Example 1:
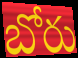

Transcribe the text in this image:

బోరు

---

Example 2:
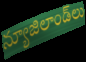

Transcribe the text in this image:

న్యూజిలాండ్‌లు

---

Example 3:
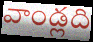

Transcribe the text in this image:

వాండ్లది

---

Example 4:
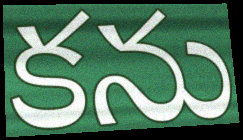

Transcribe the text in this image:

కను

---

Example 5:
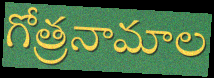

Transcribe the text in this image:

గోత్రనామాల